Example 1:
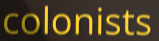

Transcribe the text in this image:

colonists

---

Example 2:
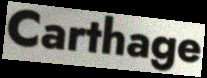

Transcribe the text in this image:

Carthage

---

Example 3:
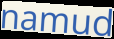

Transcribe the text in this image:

namud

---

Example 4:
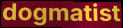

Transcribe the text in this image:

dogmatist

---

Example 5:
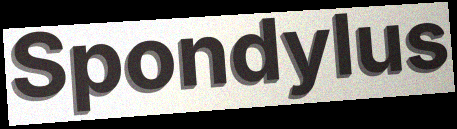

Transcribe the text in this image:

Spondylus